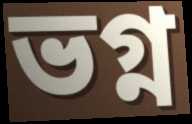
ভগ্ন